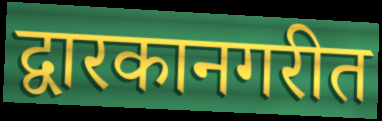
द्वारकानगरीत